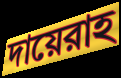
দায়েরাহ